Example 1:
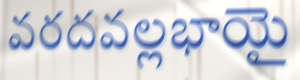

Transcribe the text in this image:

వరదవల్లభాయై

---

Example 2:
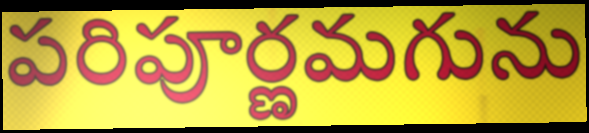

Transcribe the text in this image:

పరిపూర్ణమగును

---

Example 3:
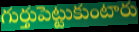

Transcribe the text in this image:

గుర్తుపెట్టుకుంటారు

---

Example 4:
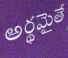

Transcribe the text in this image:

అర్థమైతే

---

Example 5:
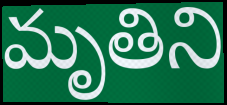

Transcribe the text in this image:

మృతిని